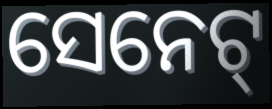
ସେନେଟ୍